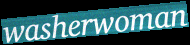
washerwoman